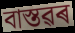
বাস্তৱৰ